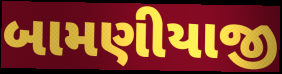
બામણીયાજી